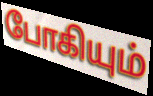
போகியும்